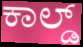
ಕಾಲ್ಡ್